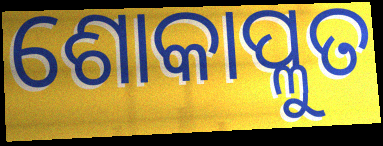
ଶୋକାପ୍ଳୁତ